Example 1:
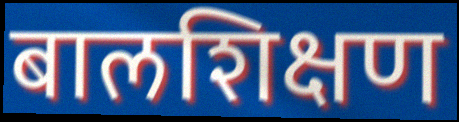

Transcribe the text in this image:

बालशिक्षण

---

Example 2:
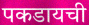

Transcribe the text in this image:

पकडायची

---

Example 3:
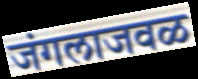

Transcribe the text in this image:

जंगलाजवळ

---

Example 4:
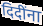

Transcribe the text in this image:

दिदींना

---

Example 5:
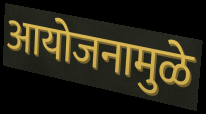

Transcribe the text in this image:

आयोजनामुळे